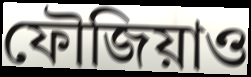
ফৌজিয়াও